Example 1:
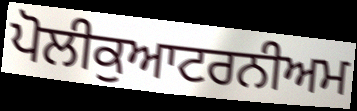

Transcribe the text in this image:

ਪੋਲੀਕੁਆਟਰਨੀਅਮ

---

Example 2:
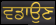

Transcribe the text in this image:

ਵਡਾਉਣ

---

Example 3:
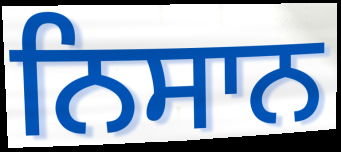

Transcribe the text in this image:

ਨਿਸਾਨ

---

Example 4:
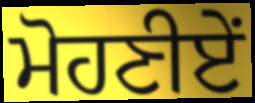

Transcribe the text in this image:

ਮੋਹਣੀਏਂ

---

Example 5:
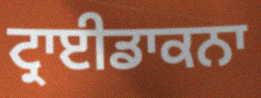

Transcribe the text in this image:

ਟ੍ਰਾਈਡਾਕਨਾ